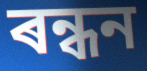
ৰন্ধন